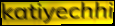
katiyechhi